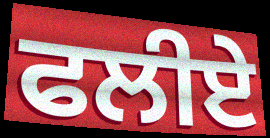
ਫਲੀਏ